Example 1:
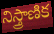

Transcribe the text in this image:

నిస్త్రాణిక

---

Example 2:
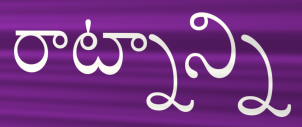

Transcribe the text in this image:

రాట్నాన్ని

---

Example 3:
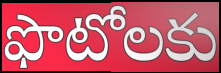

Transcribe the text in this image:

ఫొటోలకు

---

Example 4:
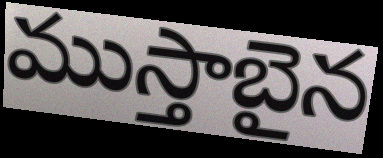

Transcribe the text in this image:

ముస్తాబైన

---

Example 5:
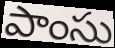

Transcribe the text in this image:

పాంసు